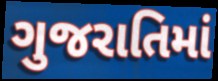
ગુજરાતિમાં